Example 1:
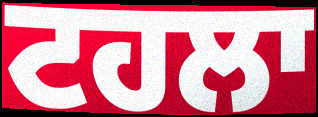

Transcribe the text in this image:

ਟਹਲਾ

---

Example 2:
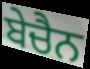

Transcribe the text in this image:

ਬੇਚੈਨ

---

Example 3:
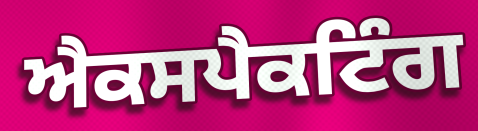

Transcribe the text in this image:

ਐਕਸਪੈਕਟਿੰਗ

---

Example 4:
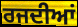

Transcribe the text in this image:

ਰਜਦੀਆਂ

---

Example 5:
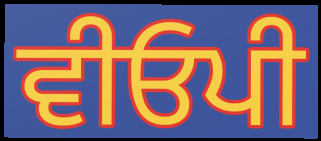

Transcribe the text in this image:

ਵੀਓਪੀ